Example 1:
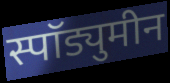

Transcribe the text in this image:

स्पॉड्युमीन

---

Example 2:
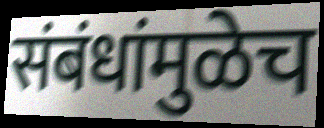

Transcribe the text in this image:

संबंधांमुळेच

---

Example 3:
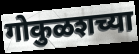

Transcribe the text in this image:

गोकुळशच्या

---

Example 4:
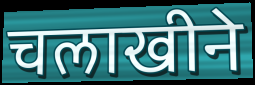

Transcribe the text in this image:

चलाखीने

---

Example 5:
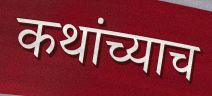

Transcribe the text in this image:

कथांच्याच